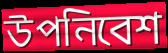
উপনিবেশ